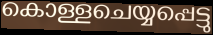
കൊള്ളചെയ്യപ്പെട്ടു